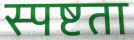
स्पष्टता